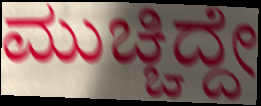
ಮುಚ್ಚಿದ್ದೇ